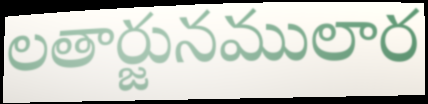
లతార్జునములార